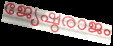
ജ്യേഷ്ഠരാജം